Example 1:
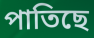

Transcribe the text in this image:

পাতিছে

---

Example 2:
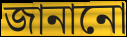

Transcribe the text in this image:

জানানো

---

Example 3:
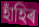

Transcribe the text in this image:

হাঁহিৰ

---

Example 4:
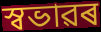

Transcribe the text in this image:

স্বভাৱৰ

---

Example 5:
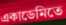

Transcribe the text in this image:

একাডেমিতে